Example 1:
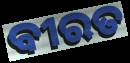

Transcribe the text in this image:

ବୀରତ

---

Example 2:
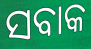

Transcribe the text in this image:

ସବାକ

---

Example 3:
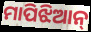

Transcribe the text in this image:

ମାପିଝିଆନ୍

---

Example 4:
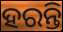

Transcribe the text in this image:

ହରନ୍ତି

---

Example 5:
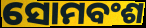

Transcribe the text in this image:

ସୋମବଂଶ